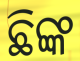
ଛିଙ୍କ